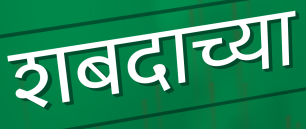
शबदाच्या